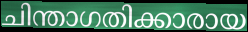
ചിന്താഗതിക്കാരായ